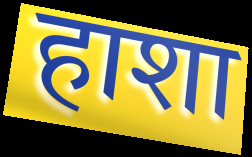
हाशा